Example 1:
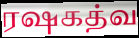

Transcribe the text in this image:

ரஷகத்வ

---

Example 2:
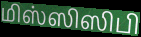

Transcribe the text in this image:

மிஸ்ஸிஸிபி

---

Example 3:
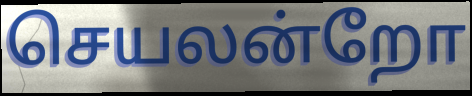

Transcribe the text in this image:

செயலன்றோ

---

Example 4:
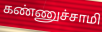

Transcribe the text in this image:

கண்ணுச்சாமி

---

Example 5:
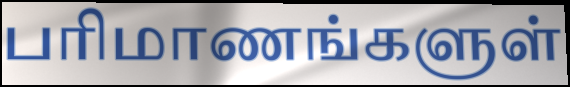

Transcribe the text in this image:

பரிமாணங்களுள்